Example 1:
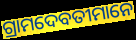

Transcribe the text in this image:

ଗ୍ରାମଦେବତୀମାନେ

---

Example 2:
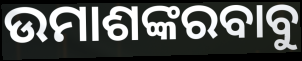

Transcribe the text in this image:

ଉମାଶଙ୍କରବାବୁ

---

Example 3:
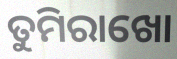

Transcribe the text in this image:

ତୁମିରାଖୋ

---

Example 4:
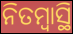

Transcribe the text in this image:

ନିତମ୍ବାସ୍ଥି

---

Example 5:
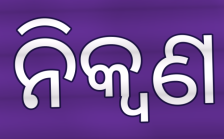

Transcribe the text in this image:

ନିକ୍ୱଣ